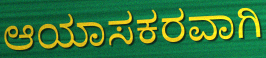
ಆಯಾಸಕರವಾಗಿ